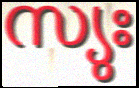
സ്യുഃ